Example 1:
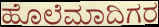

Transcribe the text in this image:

ಹೊಲೆಮಾದಿಗರ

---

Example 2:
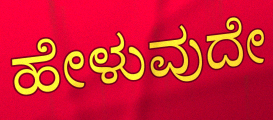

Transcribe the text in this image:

ಹೇಳುವುದೇ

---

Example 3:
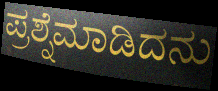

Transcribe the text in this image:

ಪ್ರಶ್ನೆಮಾಡಿದನು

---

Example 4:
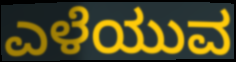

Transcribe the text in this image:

ಎಳೆಯುವ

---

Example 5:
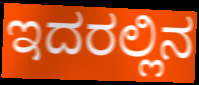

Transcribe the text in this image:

ಇದರಲ್ಲಿನ